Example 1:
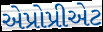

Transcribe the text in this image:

એપ્રોપ્રીએટ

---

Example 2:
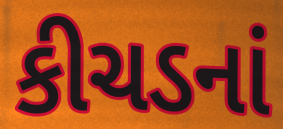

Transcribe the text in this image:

કીચડનાં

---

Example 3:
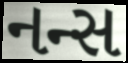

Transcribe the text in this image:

નન્સ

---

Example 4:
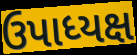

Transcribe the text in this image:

ઉપાધ્યક્ષ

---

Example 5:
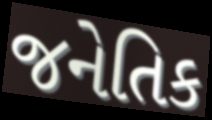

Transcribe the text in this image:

જનેતિક